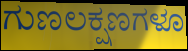
ಗುಣಲಕ್ಷಣಗಳೂ